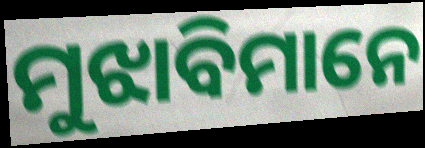
ମୁଝାବିମାନେ